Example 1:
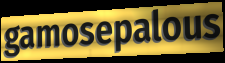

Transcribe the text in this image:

gamosepalous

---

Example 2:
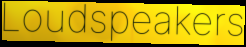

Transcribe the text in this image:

Loudspeakers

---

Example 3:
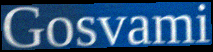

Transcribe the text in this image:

Gosvami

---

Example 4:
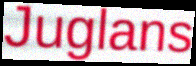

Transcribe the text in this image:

Juglans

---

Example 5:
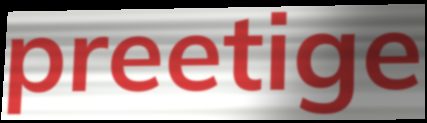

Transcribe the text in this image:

preetige